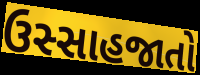
ઉસ્સાહજાતો